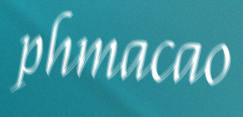
phmacao